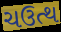
ચઉત્થ